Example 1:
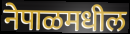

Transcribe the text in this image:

नेपाळमधील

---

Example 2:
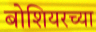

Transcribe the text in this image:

बोशियरच्या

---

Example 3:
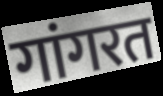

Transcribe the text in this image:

गांगरत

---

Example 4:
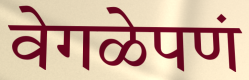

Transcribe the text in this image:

वेगळेपणं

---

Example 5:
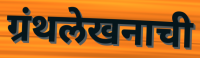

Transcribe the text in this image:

ग्रंथलेखनाची